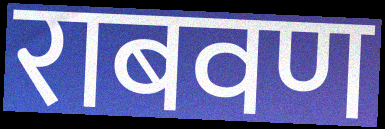
राबवण